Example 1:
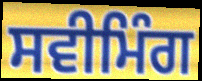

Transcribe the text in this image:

ਸਵੀਮਿੰਗ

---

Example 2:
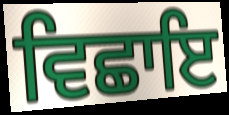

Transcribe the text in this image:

ਵਿਛਾਇ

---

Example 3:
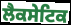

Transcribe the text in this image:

ਲੈਕਸੇਟਿਕ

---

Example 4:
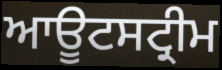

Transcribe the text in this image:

ਆਊਟਸਟ੍ਰੀਮ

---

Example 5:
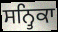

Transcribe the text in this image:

ਸਨ੍ਤਿਕਾ